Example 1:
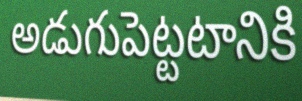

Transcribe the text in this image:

అడుగుపెట్టటానికి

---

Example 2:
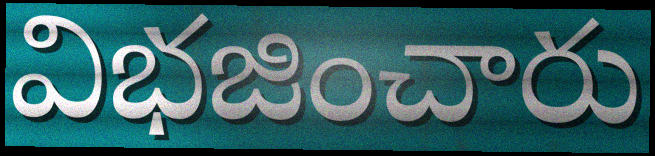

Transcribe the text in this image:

విభజించారు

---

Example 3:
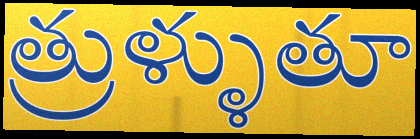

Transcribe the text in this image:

త్రుళ్ళుతూ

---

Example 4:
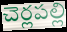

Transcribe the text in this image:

చెర్లపల్లి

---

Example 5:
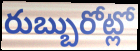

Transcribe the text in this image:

రుబ్బురోట్లో